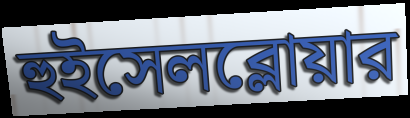
হুইসেলব্লোয়ার